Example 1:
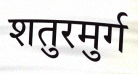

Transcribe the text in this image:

शतुरमुर्ग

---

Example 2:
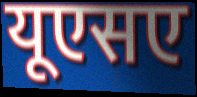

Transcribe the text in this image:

यूएसए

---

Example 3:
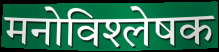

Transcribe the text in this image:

मनोविश्लेषक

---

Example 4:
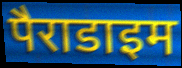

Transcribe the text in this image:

पैराडाइम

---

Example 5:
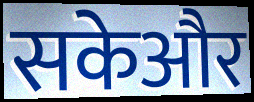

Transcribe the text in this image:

सकेऔर